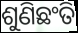
ଶୁଣିଛଂତି